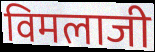
विमलाजी